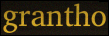
grantho